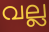
വല്ല